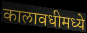
कालावधीमध्ये